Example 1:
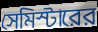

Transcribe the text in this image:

সেমিস্টারের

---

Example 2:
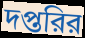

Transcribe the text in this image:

দপ্তরির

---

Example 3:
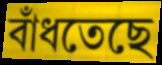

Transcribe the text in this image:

বাঁধতেছে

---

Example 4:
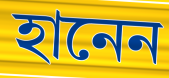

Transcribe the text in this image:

হানেন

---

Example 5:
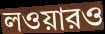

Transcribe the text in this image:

লওয়ারও